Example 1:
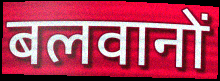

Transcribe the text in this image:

बलवानों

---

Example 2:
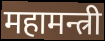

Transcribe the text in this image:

महामन्त्री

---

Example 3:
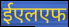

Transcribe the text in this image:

ईएलएफ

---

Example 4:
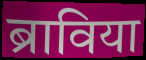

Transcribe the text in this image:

ब्राविया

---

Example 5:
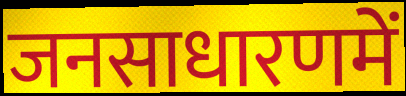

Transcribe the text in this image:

जनसाधारणमें